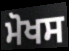
ਮੋਖਸ